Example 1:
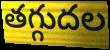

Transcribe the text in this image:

తగ్గుదల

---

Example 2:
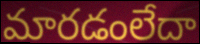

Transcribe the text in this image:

మారడంలేదా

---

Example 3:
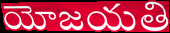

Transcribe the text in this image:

యోజయతి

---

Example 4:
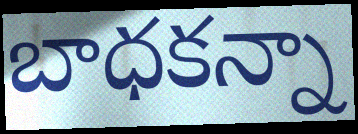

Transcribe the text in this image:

బాధకన్నా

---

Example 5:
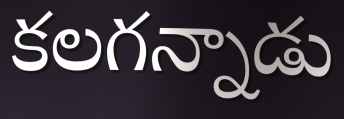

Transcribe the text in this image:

కలగన్నాడు